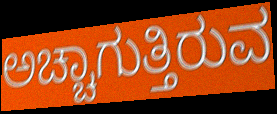
ಅಚ್ಚಾಗುತ್ತಿರುವ